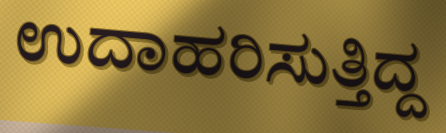
ಉದಾಹರಿಸುತ್ತಿದ್ದ